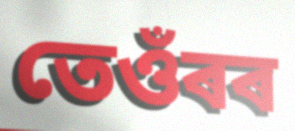
তেওঁৰৰ